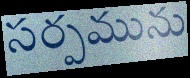
సర్పమును